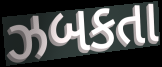
ઝબકતા